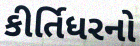
કીર્તિધરનો